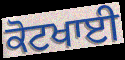
ਕੋਟਖਾਈ